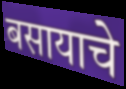
बसायाचे